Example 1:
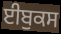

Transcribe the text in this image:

ਈਬੁਕਸ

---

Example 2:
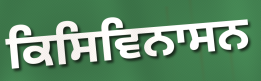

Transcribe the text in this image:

ਕਿਸਿਵਿਨਾਸਨ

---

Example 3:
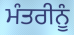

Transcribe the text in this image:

ਮੰਤਰੀਨੂੰ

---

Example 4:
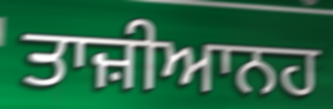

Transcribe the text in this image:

ਤਾਜ਼ੀਆਨਹ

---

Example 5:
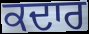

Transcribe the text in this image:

ਕਦਾਰ